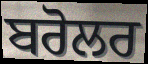
ਬਰੋਲਰ